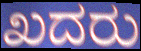
ಖದರು